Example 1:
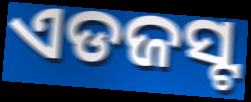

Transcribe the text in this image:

ଏଡଜସ୍ଟ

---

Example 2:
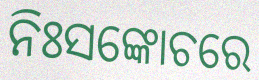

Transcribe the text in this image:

ନିଃସଙ୍କୋଚରେ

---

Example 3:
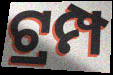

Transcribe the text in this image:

ଟ୍ରମ୍ପ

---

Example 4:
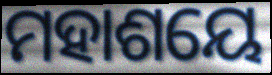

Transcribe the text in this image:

ମହାଶୟେ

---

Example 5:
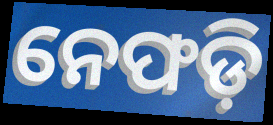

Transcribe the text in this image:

ନେଫଡ଼ି